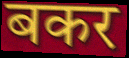
बकर